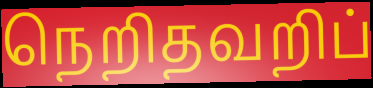
நெறிதவறிப்